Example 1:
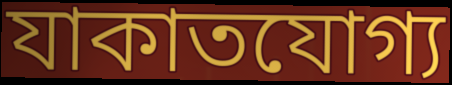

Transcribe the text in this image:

যাকাতযোগ্য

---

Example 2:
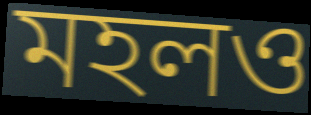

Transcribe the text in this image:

মহলও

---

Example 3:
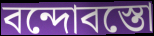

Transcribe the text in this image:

বন্দোবস্তো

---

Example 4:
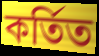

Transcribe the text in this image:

কর্তিত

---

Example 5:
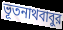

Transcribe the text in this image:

ভূতনাথবাবুর